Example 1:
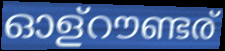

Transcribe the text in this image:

ഓള്റൗണ്ടര്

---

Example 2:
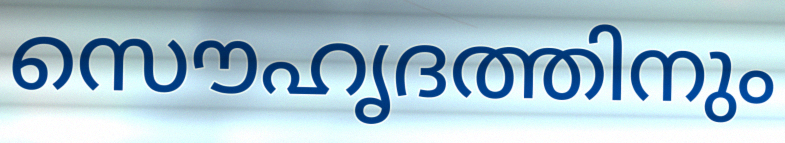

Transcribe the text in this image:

സൌഹൃദത്തിനും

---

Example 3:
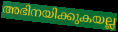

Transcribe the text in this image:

അഭിനയിക്കുകയല്ല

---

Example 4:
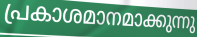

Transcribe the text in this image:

പ്രകാശമാനമാക്കുന്നു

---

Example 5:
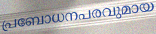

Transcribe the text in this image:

പ്രബോധനപരവുമായ